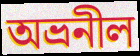
অভ্রনীল